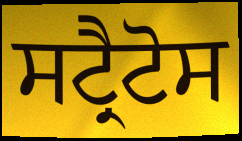
ਸਟ੍ਰੈਟੋਸ